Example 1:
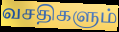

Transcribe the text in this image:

வசதிகளும்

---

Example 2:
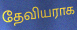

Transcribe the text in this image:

தேவியராக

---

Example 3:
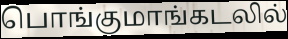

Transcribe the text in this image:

பொங்குமாங்கடலில்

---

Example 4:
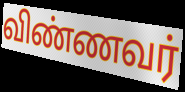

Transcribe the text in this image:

விண்ணவர்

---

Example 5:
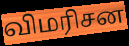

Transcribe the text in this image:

விமரிசன